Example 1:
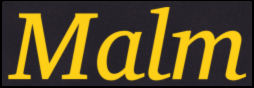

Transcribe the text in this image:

Malm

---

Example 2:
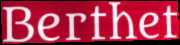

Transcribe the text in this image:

Berthet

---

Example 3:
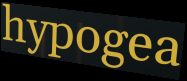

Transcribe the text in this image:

hypogea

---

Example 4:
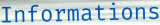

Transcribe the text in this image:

Informations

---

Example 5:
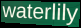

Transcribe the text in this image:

waterlily